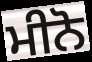
ਮੀਨੋ